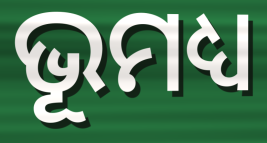
ଭୂମଧ୍ୟ